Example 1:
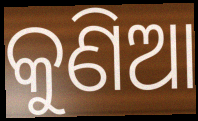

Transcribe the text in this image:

କୁଣିଆ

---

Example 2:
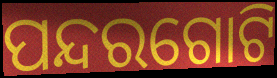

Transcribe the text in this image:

ପନ୍ଦରଗୋଟି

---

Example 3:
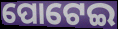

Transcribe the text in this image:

ପୋଟେଇ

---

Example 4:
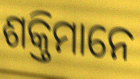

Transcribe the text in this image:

ଶକ୍ତିମାନେ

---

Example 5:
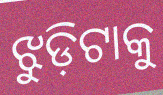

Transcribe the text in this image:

ଝୁଡ଼ିଟାକୁ